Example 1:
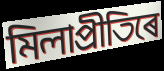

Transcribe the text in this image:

মিলাপ্ৰীতিৰে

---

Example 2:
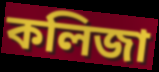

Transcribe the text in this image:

কলিজা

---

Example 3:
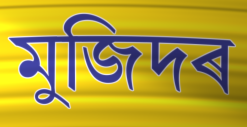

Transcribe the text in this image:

মুজিদৰ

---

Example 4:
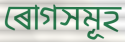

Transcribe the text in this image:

ৰোগসমূহ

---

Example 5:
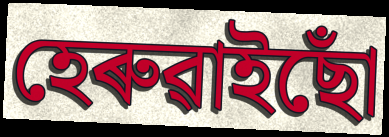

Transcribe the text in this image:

হেৰুৱাইছোঁ